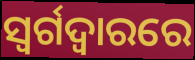
ସ୍ୱର୍ଗଦ୍ୱାରରେ